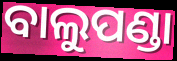
ବାଲୁପଣ୍ଡା